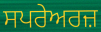
ਸਪਰੇਅਰਜ਼